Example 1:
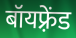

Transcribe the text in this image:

बॉयफ़्रेंड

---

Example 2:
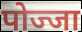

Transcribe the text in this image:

पोज्जा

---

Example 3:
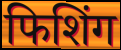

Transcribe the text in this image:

फिशिंग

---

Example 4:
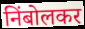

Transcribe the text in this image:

निंबोलकर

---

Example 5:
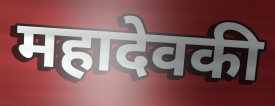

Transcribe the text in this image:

महादेवकी